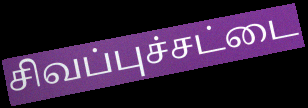
சிவப்புச்சட்டை